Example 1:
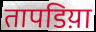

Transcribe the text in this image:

तापडिय़ा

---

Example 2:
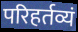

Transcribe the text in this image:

परिहर्तव्यं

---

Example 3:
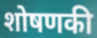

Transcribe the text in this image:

शोषणकी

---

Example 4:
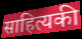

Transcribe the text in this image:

साहित्यकी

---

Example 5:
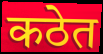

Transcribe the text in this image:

कठेत